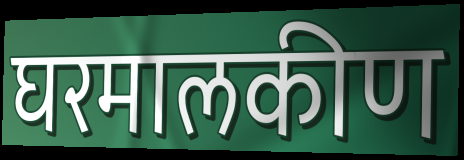
घरमालकीण